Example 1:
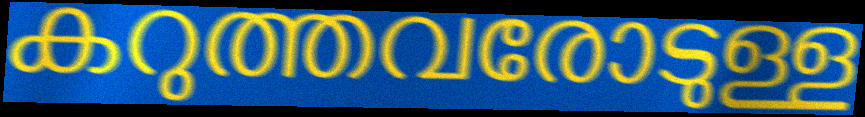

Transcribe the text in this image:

കറുത്തവരോടുള്ള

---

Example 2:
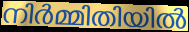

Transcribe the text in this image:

നിർമ്മിതിയിൽ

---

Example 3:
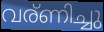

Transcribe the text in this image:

വര്ണിച്ചു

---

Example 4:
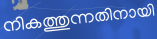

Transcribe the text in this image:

നികത്തുന്നതിനായി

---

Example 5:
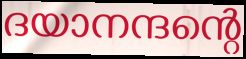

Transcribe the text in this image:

ദയാനന്ദന്റെ